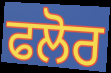
ਫਲੋਰ